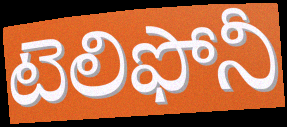
టెలిఫోనీ